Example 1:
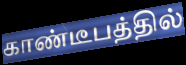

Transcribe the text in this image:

காண்டீபத்தில்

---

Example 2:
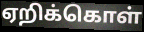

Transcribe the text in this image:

ஏறிக்கொள்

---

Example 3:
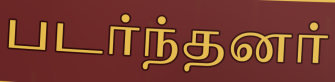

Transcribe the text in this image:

படர்ந்தனர்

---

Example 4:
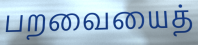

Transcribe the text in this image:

பறவையைத்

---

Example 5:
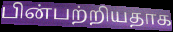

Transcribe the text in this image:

பின்பற்றியதாக